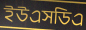
ইউএসডিএ